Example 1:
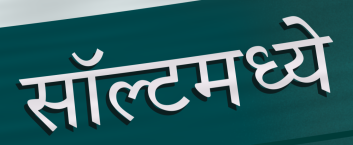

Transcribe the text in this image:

सॉल्टमध्ये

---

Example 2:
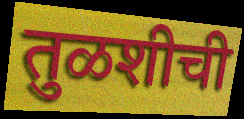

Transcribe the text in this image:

तुळशीची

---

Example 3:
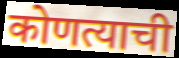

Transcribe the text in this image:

कोणत्याची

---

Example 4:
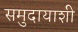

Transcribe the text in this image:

समुदायाशी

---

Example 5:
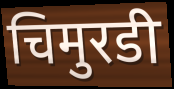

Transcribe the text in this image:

चिमुरडी